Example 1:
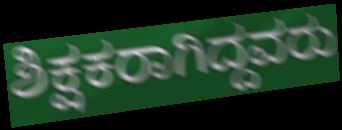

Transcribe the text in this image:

ಶಿಕ್ಷಕರಾಗಿದ್ದವರು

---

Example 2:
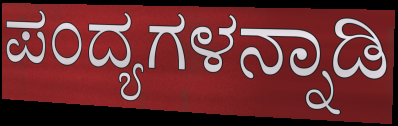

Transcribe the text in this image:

ಪಂದ್ಯಗಳನ್ನಾಡಿ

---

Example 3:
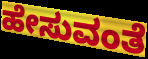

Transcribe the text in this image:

ಹೇಸುವಂತೆ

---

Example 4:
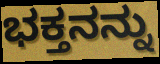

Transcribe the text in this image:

ಭಕ್ತನನ್ನು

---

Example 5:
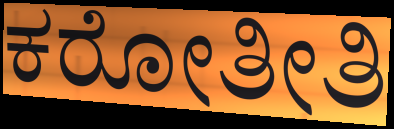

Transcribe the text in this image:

ಕರೋತೀತಿ